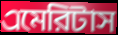
এমেরিটাস